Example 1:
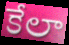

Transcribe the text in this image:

కేలా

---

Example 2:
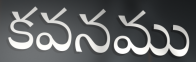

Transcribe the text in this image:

కవనము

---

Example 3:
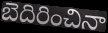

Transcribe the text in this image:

బెదిరించినా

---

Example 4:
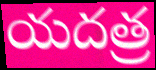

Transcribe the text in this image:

యదత్ర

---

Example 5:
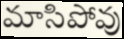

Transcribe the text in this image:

మాసిపోవు